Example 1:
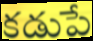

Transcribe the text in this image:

కడుపే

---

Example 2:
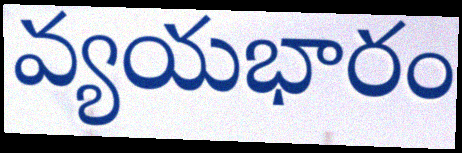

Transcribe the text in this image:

వ్యయభారం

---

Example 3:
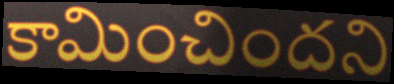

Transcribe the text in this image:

కామించిందని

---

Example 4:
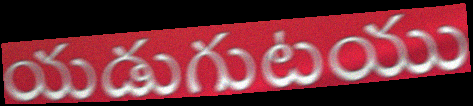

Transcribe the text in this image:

యడుగుటయు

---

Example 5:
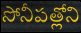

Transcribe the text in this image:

సోనీపత్లోని